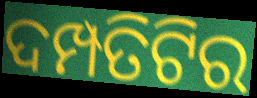
ଦମ୍ପତିଟିର